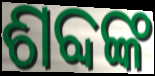
ଶବ୍ଦଙ୍କ